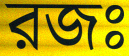
রজঃ